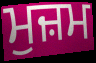
ਮੁਜ਼ਮ